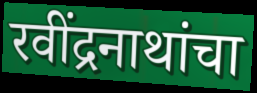
रवींद्रनाथांचा